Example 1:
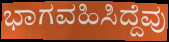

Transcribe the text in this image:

ಭಾಗವಹಿಸಿದ್ದೆವು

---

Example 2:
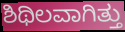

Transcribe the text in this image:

ಶಿಥಿಲವಾಗಿತ್ತು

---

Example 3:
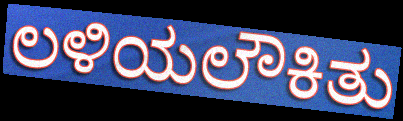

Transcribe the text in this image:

ಲಳಿಯಲೌಕಿತು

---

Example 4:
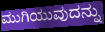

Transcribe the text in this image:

ಮುಗಿಯುವುದನ್ನು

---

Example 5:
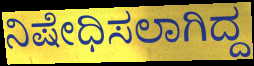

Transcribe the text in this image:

ನಿಷೇಧಿಸಲಾಗಿದ್ದ